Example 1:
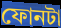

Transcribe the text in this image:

ফোনটা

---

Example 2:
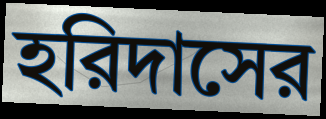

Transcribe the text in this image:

হরিদাসের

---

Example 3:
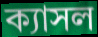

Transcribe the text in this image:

ক্যাসল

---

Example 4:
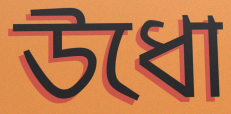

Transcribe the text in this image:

উধো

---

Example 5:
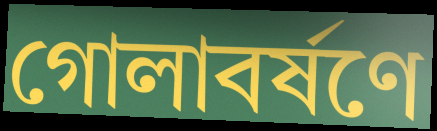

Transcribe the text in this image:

গোলাবর্ষণে